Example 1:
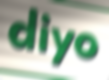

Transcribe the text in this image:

diyo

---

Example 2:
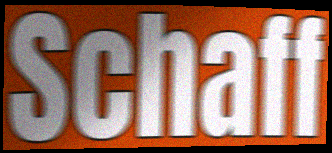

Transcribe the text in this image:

Schaff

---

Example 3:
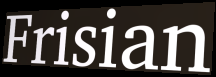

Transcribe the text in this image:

Frisian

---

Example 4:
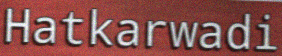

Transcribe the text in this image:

Hatkarwadi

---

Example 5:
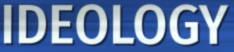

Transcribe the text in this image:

IDEOLOGY